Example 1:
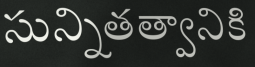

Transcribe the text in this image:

సున్నితత్వానికి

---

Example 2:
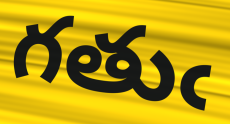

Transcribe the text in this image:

గతుఁ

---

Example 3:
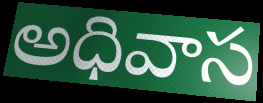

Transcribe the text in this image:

అధివాస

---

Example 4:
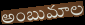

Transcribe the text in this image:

అంబుమాల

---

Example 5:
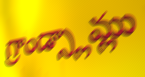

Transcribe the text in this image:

గ్రాండ్స్లామ్లు